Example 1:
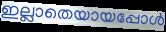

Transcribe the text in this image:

ഇല്ലാതെയായപ്പോൾ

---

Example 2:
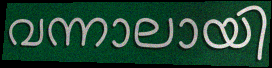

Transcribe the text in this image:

വന്നാലായി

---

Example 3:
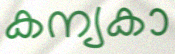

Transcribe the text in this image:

കന്യകാ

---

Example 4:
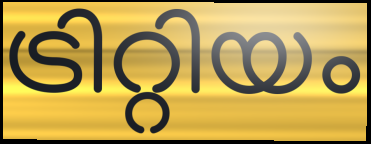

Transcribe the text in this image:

ട്രിറ്റിയം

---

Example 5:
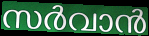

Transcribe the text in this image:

സർവാൻ